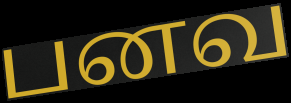
பனவ